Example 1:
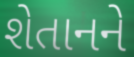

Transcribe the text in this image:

શેતાનને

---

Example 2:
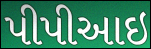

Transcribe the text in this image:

પીપીઆઇ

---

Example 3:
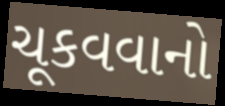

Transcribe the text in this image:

ચૂકવવાનો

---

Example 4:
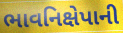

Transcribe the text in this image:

ભાવનિક્ષેપાની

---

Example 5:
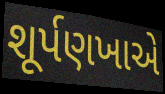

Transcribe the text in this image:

શૂર્પણખાએ